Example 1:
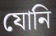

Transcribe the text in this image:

যোনি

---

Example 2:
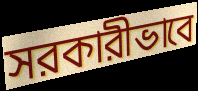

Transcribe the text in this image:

সরকারীভাবে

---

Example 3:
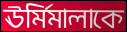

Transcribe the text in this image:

ঊর্মিমালাকে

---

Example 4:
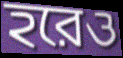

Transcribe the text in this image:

হরেও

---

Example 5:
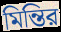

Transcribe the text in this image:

মিন্তির